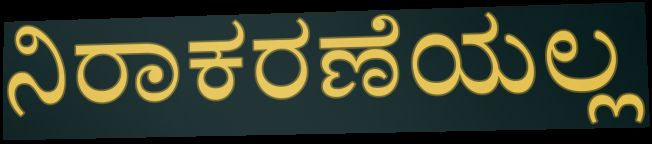
ನಿರಾಕರಣೆಯಲ್ಲ